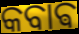
କବାଵ